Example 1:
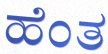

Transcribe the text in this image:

ಹೆಂತ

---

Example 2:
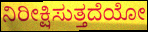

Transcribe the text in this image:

ನಿರೀಕ್ಷಿಸುತ್ತದೆಯೋ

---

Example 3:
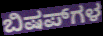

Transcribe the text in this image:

ಬಿಷಪ್‌ಗಳ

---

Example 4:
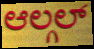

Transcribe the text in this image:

ಆಲ್ಗಲ್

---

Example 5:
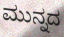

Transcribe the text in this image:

ಮುನ್ನದ